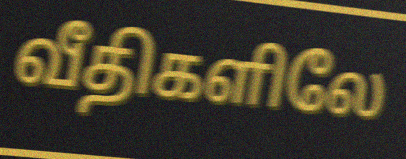
வீதிகளிலே